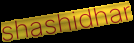
shashidhar